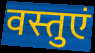
वस्तुएं